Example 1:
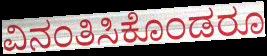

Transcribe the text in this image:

ವಿನಂತಿಸಿಕೊಂಡರೂ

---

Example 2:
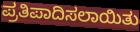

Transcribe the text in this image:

ಪ್ರತಿಪಾದಿಸಲಾಯಿತು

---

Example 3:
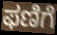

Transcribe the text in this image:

ಫಣಿಗೆ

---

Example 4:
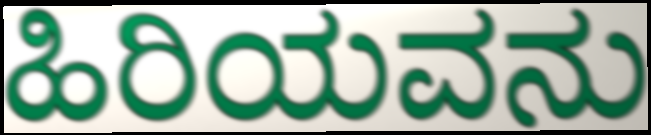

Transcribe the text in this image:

ಹಿರಿಯವನು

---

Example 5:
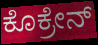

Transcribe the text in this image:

ಕೊಕ್ರೇನ್